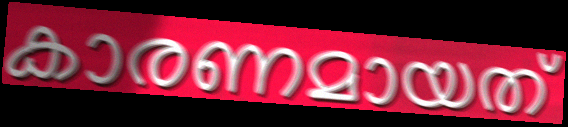
കാരണമായത്